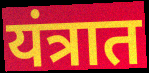
यंत्रात